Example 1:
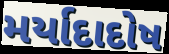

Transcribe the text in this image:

મર્યાદાદોષ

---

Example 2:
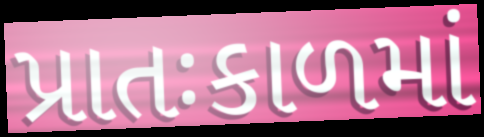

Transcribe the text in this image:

પ્રાતઃકાળમાં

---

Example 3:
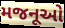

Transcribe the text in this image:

મજનૂઓ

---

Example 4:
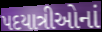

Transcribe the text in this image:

પદયાત્રીઓનાં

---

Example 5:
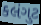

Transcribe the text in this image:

કલંગુટ